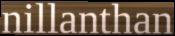
nillanthan